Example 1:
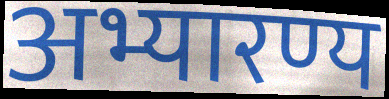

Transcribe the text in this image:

अभ्यारण्य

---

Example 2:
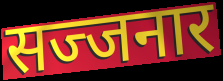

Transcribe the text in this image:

सज्जनार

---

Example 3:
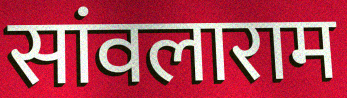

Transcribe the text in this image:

सांवलाराम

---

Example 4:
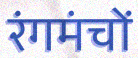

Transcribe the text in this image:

रंगमंचों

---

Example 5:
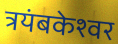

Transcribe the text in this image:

त्रयंबकेश्वर